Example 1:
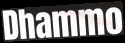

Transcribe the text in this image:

Dhammo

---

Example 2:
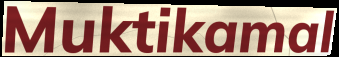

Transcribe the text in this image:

Muktikamal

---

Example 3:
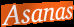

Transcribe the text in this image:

Asanas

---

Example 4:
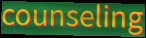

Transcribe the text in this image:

counseling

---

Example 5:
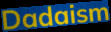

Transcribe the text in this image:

Dadaism